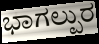
ಭಾಗಲ್ಪುರ